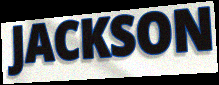
JACKSON